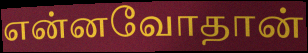
என்னவோதான்